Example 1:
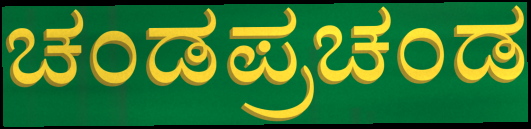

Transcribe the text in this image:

ಚಂಡಪ್ರಚಂಡ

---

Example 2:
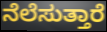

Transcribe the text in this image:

ನೆಲೆಸುತ್ತಾರೆ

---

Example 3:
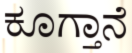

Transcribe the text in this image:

ಕೂಗ್ತಾನೆ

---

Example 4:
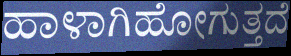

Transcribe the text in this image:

ಹಾಳಾಗಿಹೋಗುತ್ತದೆ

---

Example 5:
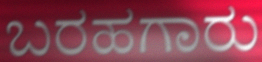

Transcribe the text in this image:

ಬರಹಗಾರು